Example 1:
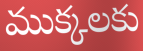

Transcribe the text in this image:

ముక్కలకు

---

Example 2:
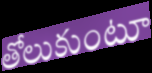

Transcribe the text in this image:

తోలుకుంటూ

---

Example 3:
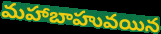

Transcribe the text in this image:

మహాబాహువయిన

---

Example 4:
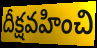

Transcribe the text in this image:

దీక్షవహించి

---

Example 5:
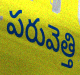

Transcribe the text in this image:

పరువెత్తి